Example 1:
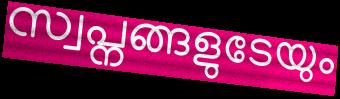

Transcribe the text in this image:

സ്വപ്നങ്ങളുടേയും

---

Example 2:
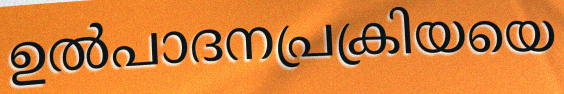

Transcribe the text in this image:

ഉൽപാദനപ്രക്രിയയെ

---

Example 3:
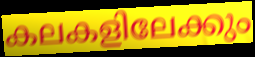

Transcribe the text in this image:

കലകളിലേക്കും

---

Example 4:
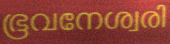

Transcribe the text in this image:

ഭൂവനേശ്വരി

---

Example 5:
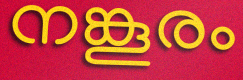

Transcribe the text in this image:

നങ്കൂരം